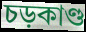
চড়কাণ্ড